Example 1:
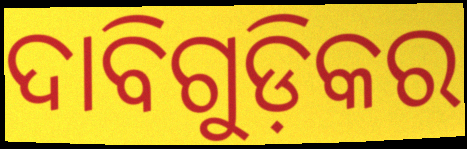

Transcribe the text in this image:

ଦାବିଗୁଡ଼ିକର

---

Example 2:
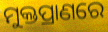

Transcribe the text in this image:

ମୁକ୍ତପ୍ରାଣରେ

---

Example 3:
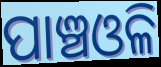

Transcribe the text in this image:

ପାଞ୍ଚଓଳି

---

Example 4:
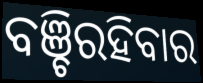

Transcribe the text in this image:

ବଞ୍ଚିରହିବାର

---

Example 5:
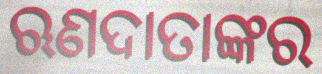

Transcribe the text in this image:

ଋଣଦାତାଙ୍କର